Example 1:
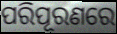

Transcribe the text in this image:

ପରିପୂରଣରେ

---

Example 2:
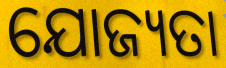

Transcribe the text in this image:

ଯୋଜ୍ୟତା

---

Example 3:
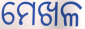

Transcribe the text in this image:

ମେଖଳ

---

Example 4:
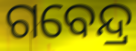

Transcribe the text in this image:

ଗବେନ୍ଦ୍ର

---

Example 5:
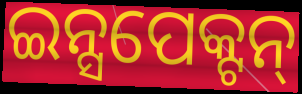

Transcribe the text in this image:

ଇନ୍ସପେକ୍ଟନ୍